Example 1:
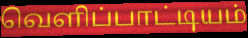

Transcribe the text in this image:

வெளிப்பாட்டியம்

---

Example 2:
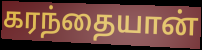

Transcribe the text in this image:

கரந்தையான்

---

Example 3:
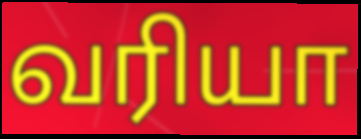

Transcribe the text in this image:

வரியா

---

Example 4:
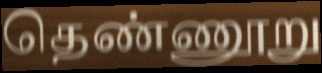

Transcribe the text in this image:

தெண்ணூறு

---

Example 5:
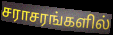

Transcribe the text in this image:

சராசரங்களில்